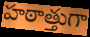
హఠాత్తుగా